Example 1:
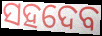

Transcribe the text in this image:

ସହଦେବ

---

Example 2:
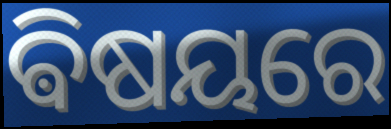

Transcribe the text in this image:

ଵିଷୟରେ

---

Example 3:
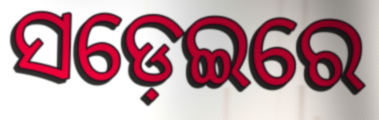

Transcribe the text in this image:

ସଡ଼େଇରେ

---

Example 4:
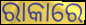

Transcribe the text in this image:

ରାକାରେ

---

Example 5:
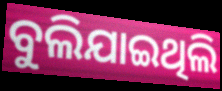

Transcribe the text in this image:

ବୁଲିଯାଇଥିଲି